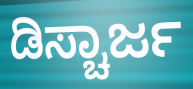
ಡಿಸ್ಚಾರ್ಜ